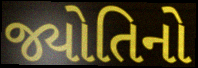
જ્યોતિનો